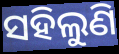
ସହିଲୁଣି